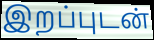
இறப்புடன்